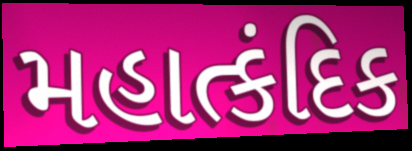
મહાત્કંદિક